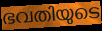
ഭവതിയുടെ